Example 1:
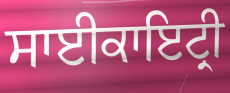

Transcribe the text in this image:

ਸਾਈਕਾਇਟ੍ਰੀ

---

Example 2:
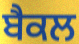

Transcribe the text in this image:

ਬੈਕਲ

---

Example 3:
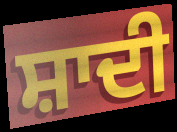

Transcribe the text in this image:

ਸ਼ਾਦੀ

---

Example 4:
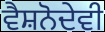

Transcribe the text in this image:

ਵੈਸ਼ਨੋਦੇਵੀ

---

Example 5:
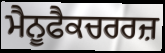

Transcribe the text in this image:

ਮੈਨੂਫੈਕਚਰਰਜ਼